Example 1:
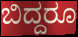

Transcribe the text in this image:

ಬಿದ್ದರೂ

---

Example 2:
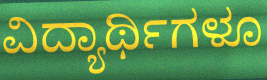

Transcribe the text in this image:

ವಿದ್ಯಾರ್ಥಿಗಳೂ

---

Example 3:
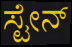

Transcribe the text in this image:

ಸ್ಟೇನ್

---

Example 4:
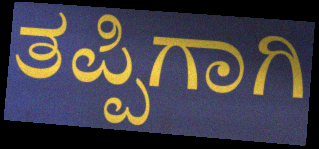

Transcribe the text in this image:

ತಪ್ಪಿಗಾಗಿ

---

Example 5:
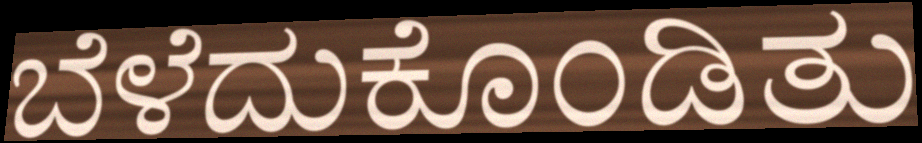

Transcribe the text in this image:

ಬೆಳೆದುಕೊಂಡಿತು